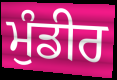
ਮੁੰਡੀਰ